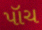
પૉચ